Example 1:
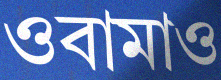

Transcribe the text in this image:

ওবামাও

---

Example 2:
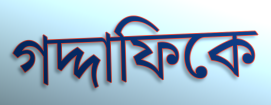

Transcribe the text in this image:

গদ্দাফিকে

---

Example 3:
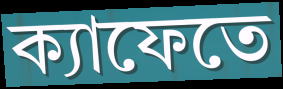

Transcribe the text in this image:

ক্যাফেতে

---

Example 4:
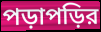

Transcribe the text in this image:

পড়াপড়ির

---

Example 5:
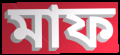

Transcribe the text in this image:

মাফ